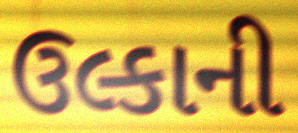
ઉલ્કાની